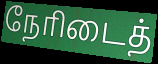
நேரிடைத்